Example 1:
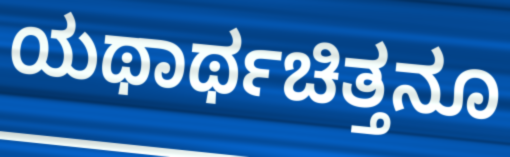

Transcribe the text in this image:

ಯಥಾರ್ಥಚಿತ್ತನೂ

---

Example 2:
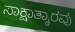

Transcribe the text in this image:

ಸಾಕ್ಷಾತ್ಕಾರವು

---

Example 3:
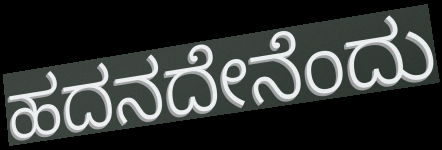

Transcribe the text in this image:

ಹದನದೇನೆಂದು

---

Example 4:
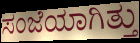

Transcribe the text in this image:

ಸಂಜೆಯಾಗಿತ್ತು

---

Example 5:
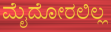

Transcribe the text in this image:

ಮೈದೋರಲಿಲ್ಲ